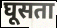
घूसता